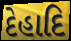
દેહાદિ